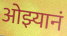
ओझ्यानं